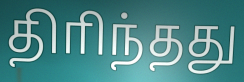
திரிந்தது